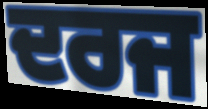
ਦਰਜ